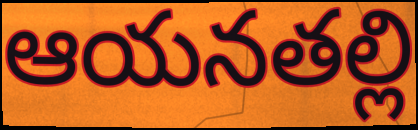
ఆయనతల్లి